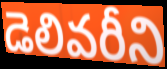
డెలివరీని